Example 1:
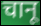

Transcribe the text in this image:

चानू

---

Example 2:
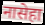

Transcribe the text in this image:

नासेहा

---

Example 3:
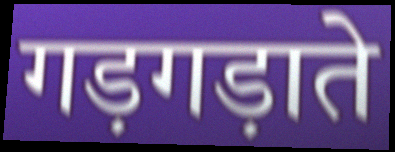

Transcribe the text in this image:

गड़गड़ाते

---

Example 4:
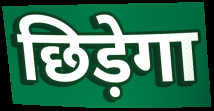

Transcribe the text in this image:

छिड़ेगा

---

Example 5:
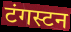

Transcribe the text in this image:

टंगस्टन